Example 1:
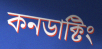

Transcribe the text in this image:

কনডাক্টিং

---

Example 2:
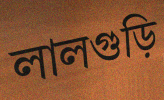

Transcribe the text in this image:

লালগুড়ি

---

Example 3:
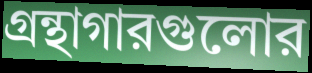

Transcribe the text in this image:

গ্রন্থাগারগুলোর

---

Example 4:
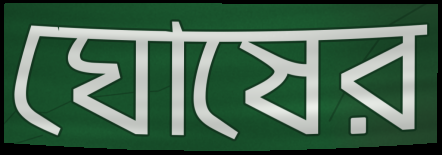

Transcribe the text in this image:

ঘোষের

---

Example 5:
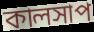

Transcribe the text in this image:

কালসাপ